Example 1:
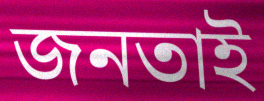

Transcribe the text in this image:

জনতাই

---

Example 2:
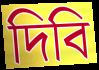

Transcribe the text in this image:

দিবি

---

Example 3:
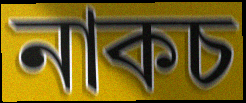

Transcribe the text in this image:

নাকচ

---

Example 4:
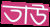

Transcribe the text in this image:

তাউ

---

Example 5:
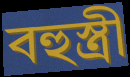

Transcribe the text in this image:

বহুস্ত্ৰী